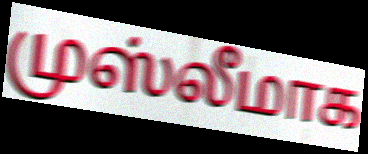
முஸ்லீமாக